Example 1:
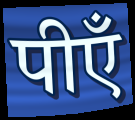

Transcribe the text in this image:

पीएँ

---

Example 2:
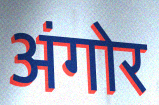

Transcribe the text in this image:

अंगोर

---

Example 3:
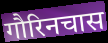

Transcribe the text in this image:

गौरिनचास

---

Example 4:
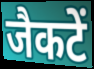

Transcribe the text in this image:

जैकटें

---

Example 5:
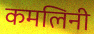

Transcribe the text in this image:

कमलिनी